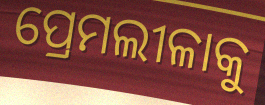
ପ୍ରେମଲୀଳାକୁ